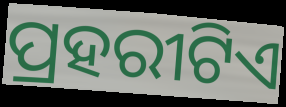
ପ୍ରହରୀଟିଏ